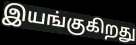
இயங்குகிறது